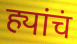
ह्यांचं